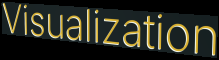
Visualization